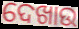
ଦେଖାଉ